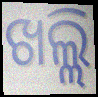
ଖଲ୍ଲି